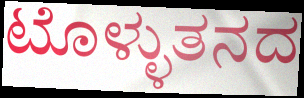
ಟೊಳ್ಳುತನದ